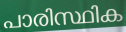
പാരിസ്ഥിക